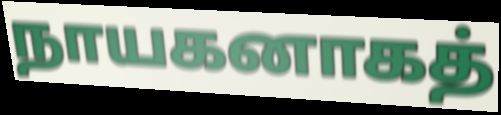
நாயகனாகத்